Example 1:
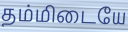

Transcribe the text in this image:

தம்மிடையே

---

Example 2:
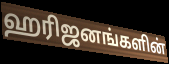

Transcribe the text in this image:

ஹரிஜனங்களின்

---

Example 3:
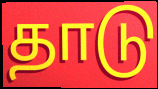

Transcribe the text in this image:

தாடு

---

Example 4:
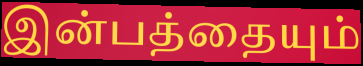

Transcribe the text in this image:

இன்பத்தையும்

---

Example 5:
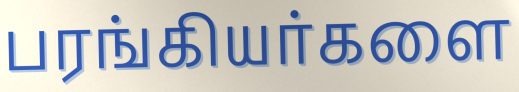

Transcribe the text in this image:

பரங்கியர்களை